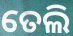
ତେଲି